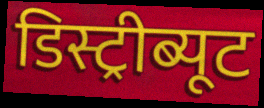
डिस्ट्रीब्यूट